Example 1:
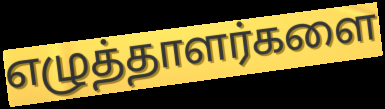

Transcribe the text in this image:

எழுத்தாளர்களை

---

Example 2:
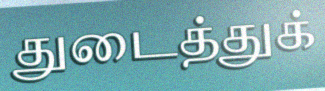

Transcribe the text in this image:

துடைத்துக்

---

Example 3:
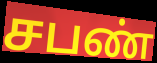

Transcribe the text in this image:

சபண்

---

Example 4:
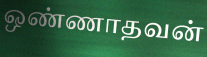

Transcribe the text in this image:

ஒண்ணாதவன்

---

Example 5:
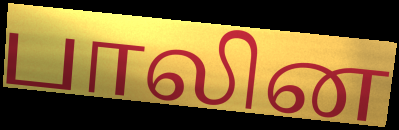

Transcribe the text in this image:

பாலின